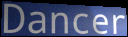
Dancer